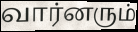
வார்னரும்